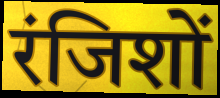
रंजिशों